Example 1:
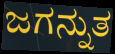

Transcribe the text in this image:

ಜಗನ್ನುತ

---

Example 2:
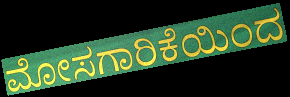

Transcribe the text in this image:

ಮೋಸಗಾರಿಕೆಯಿಂದ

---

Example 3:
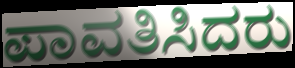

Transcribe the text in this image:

ಪಾವತಿಸಿದರು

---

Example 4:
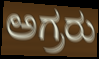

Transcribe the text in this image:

ಅಗ್ರರು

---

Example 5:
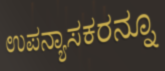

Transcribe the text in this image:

ಉಪನ್ಯಾಸಕರನ್ನೂ